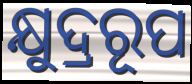
କ୍ଷୁଦ୍ରରୂପ